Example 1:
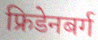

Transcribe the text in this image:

फ्रिडेनबर्ग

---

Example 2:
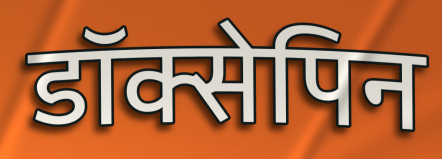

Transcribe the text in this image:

डॉक्सेपिन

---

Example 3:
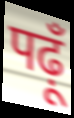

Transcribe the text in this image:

पढ़ूँ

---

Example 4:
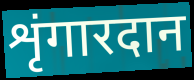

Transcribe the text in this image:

शृंगारदान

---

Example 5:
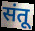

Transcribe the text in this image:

संतू